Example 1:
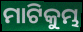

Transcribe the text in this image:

ମାଟିକୁମ୍ଭ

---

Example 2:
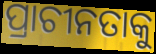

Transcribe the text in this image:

ପ୍ରାଚୀନତାକୁ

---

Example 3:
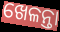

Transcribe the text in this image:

ଖେଳନ୍ତା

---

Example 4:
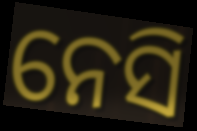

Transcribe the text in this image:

ନେସି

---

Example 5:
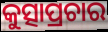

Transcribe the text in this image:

କୁତ୍ସାପ୍ରଚାର